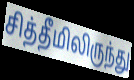
சித்தீமிலிருந்து